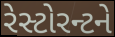
રેસ્ટોરન્ટને